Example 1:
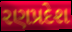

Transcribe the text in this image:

રણપ્રદેશ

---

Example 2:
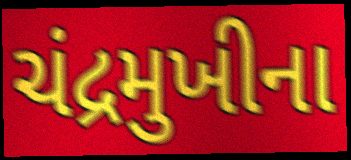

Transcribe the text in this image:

ચંદ્રમુખીના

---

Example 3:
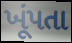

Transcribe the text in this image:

ખૂંપતા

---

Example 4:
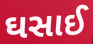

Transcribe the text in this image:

ઘસાઈ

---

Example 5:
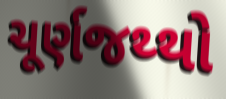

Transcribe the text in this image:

ચૂર્ણજથ્થો